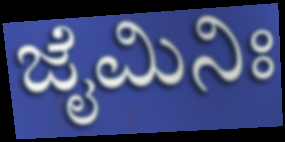
ಜೈಮಿನಿಃ